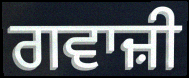
ਗਵਾਜ਼ੀ